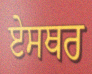
ਏਸਥਰ